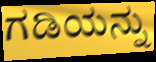
ಗಡಿಯನ್ನು